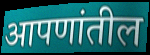
आपणांतील